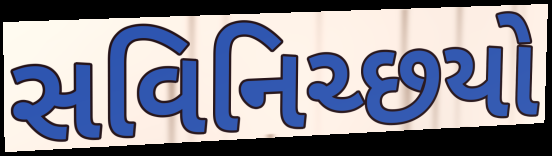
સવિનિચ્છયો